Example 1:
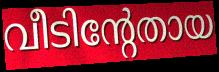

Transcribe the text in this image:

വീടിന്റേതായ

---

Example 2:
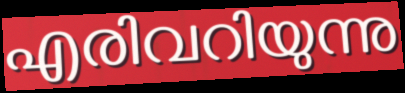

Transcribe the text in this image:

എരിവറിയുന്നു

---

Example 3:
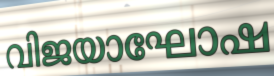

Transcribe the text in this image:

വിജയാഘോഷ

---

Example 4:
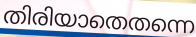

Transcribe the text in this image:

തിരിയാതെതന്നെ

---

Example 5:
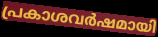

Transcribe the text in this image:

പ്രകാശവർഷമായി